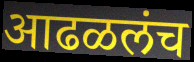
आढळलंच